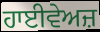
ਹਾਈਵੇਅਜ਼